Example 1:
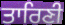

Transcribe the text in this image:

ਤਾਰਿਣੀ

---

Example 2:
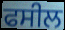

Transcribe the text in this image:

ਫਸੀਲ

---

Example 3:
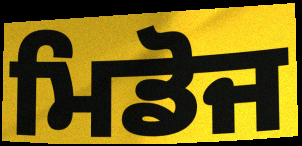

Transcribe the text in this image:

ਮਿਡੋਜ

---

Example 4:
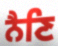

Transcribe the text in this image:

ਨੈਣਿ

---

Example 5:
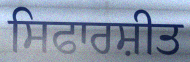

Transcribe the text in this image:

ਸਿਫਾਰਸ਼ੀਤ